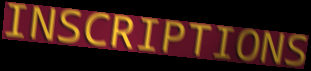
INSCRIPTIONS